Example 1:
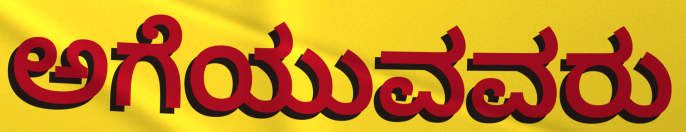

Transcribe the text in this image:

ಅಗೆಯುವವರು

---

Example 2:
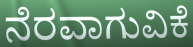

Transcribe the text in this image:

ನೆರವಾಗುವಿಕೆ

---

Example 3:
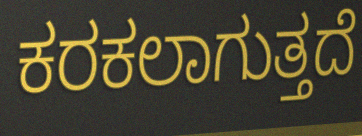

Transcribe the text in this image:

ಕರಕಲಾಗುತ್ತದೆ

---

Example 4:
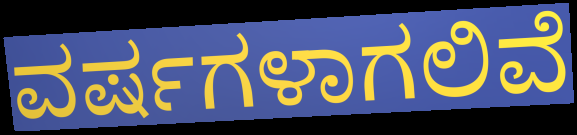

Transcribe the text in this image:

ವರ್ಷಗಳಾಗಲಿವೆ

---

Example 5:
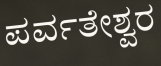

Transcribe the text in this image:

ಪರ್ವತೇಶ್ವರ